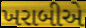
ખરાબીએ